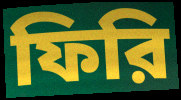
ফিরি